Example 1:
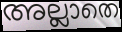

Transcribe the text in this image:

അല്ലാതെ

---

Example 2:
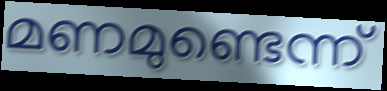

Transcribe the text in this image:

മണമുണ്ടെന്ന്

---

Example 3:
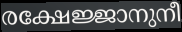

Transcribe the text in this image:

രക്ഷേജ്ജാനുനീ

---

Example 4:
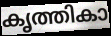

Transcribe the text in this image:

കൃത്തികാ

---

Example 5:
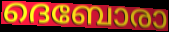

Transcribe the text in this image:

ദെബോരാ